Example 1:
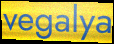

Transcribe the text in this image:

vegalya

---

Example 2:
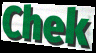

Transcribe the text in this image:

Chek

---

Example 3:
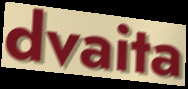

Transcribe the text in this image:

dvaita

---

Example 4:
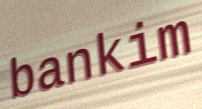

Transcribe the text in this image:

bankim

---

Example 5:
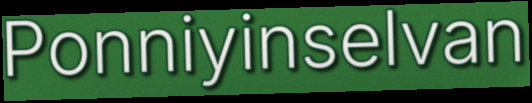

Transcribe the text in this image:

Ponniyinselvan